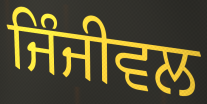
ਜਿੰਜੀਵਲ